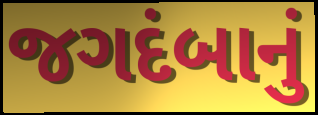
જગદંબાનું